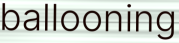
ballooning